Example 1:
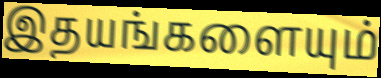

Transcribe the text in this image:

இதயங்களையும்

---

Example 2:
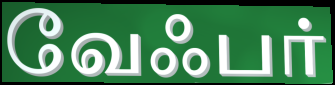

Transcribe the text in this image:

வேஃபர்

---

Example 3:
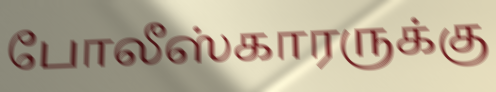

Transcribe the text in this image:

போலீஸ்காரருக்கு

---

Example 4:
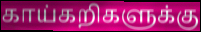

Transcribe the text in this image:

காய்கறிகளுக்கு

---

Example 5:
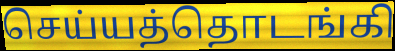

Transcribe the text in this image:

செய்யத்தொடங்கி